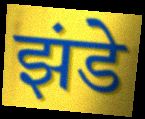
झंडे